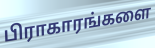
பிராகாரங்களை